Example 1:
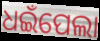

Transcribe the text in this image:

ଧଇଁପେଲା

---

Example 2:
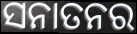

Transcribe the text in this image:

ସନାତନର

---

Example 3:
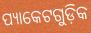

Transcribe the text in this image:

ପ୍ୟାକେଟଗୁଡ଼ିକ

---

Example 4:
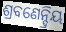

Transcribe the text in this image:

ଶ୍ରବଣେନ୍ଦ୍ରିୟ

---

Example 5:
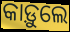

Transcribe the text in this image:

କାଡ଼ୁଲେ